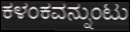
ಕಳಂಕವನ್ನುಂಟು